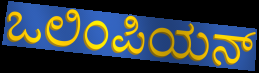
ಒಲಿಂಪಿಯನ್